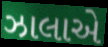
ઝાલાએ